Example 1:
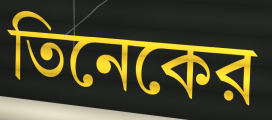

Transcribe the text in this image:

তিনেকের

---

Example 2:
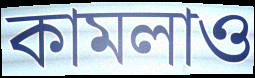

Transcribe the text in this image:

কামলাও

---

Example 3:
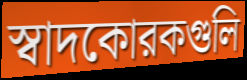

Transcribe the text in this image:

স্বাদকোরকগুলি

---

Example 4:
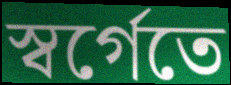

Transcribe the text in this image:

স্বর্গেতে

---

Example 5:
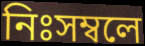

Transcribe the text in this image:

নিঃসম্বলে